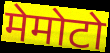
मेमोटो